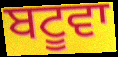
ਬਟੂਵਾ